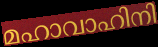
മഹാവാഹിനി